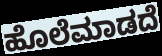
ಹೊಲೆಮಾಡದೆ